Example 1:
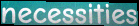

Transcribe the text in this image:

necessities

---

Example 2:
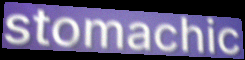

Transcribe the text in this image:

stomachic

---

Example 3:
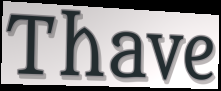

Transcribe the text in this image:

Thave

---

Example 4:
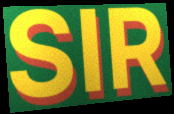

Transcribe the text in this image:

SIR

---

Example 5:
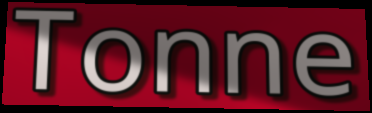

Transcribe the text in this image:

Tonne